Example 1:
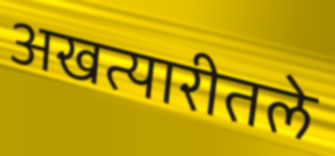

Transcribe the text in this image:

अखत्यारीतले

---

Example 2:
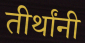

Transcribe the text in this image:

तीर्थांनी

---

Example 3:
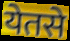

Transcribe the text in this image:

येतसे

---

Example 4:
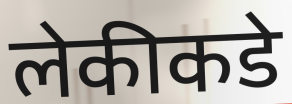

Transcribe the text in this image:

लेकीकडे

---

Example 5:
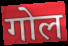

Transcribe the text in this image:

गोल